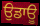
ਉਡਾਊ